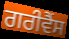
ਗਰੀਵੈਂਸ